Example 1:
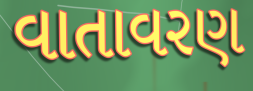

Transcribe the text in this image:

વાતાવરણ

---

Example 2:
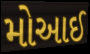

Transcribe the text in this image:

મોઆઈ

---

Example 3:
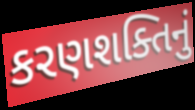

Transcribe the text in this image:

કરણશક્તિનું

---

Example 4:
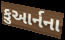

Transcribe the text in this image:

કુઆર્નના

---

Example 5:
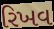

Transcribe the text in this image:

રિખવ